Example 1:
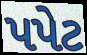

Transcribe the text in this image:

પપેટ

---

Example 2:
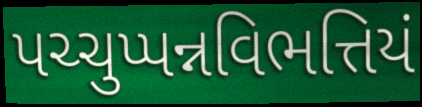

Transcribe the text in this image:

પચ્ચુપ્પન્નવિભત્તિયં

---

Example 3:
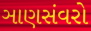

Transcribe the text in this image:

ઞાણસંવરો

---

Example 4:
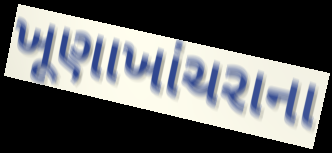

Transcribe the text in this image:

ખૂણાખાંચરાના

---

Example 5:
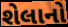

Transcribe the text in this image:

શેલાનો